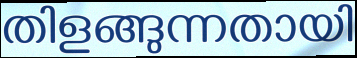
തിളങ്ങുന്നതായി